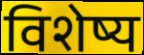
विशेष्य